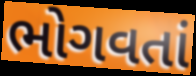
ભોગવતાં